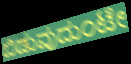
ಬಿಡುವುದುಂಟೇ